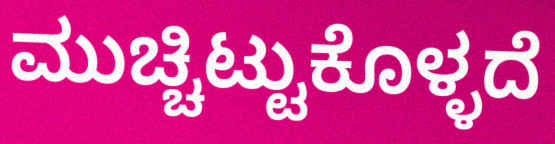
ಮುಚ್ಚಿಟ್ಟುಕೊಳ್ಳದೆ